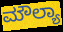
ಮೌಲ್ಯಾ